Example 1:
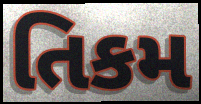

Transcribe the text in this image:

તિકમ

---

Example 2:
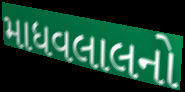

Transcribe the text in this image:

માધવલાલનો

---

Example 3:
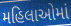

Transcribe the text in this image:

મહિલાઓમાં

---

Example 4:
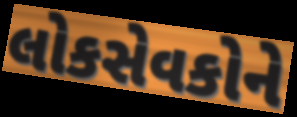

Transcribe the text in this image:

લોકસેવકોને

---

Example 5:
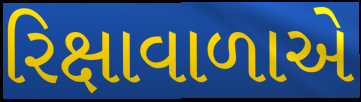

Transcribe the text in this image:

રિક્ષાવાળાએ